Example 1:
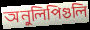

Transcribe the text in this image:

অনুলিপিগুলি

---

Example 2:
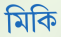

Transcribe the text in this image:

মিকি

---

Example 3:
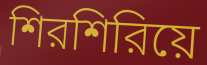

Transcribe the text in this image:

শিরশিরিয়ে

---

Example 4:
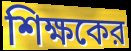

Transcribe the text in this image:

শিক্ষকের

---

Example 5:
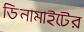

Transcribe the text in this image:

ডিনামাইটের